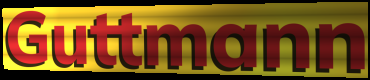
Guttmann